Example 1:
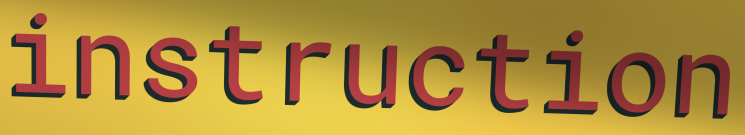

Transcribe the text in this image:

instruction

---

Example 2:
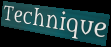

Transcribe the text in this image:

Technique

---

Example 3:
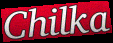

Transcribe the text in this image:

Chilka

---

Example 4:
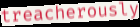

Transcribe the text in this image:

treacherously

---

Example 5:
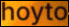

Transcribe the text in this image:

hoyto